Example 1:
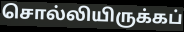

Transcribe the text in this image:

சொல்லியிருக்கப்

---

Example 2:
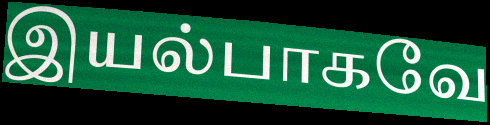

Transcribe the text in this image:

இயல்பாகவே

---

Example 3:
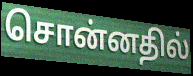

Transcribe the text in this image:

சொன்னதில்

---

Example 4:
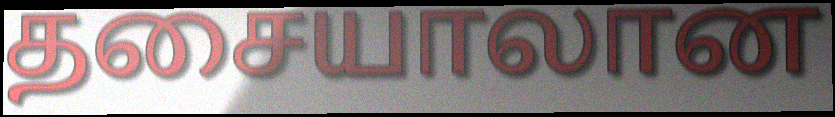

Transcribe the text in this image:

தசையாலான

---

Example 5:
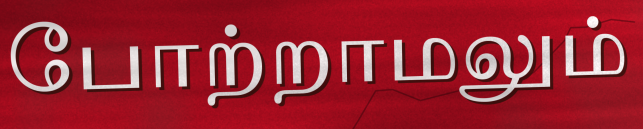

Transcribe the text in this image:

போற்றாமலும்